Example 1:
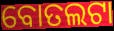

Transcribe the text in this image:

ବୋତଲଟା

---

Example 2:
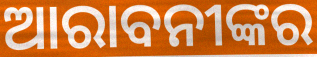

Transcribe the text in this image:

ଆରାବନୀଙ୍କର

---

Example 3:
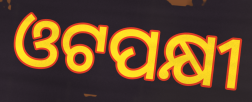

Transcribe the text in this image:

ଓଟପକ୍ଷୀ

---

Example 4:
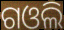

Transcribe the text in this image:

ଗଓଲି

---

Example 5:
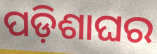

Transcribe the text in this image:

ପଡ଼ିଶାଘର